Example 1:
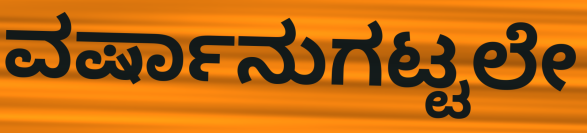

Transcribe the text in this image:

ವರ್ಷಾನುಗಟ್ಟಲೇ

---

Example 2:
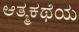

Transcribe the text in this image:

ಆತ್ಮಕಥೆಯ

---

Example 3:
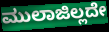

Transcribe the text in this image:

ಮುಲಾಜಿಲ್ಲದೇ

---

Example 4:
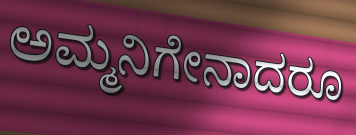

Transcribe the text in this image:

ಅಮ್ಮನಿಗೇನಾದರೂ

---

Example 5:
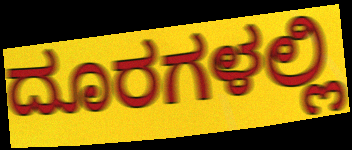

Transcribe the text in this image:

ದೂರಗಳಲ್ಲಿ